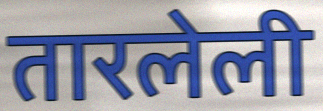
तारलेली